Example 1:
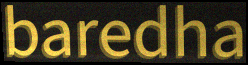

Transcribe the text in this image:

baredha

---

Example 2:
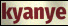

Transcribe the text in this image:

kyanye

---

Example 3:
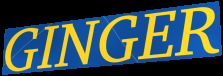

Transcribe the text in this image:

GINGER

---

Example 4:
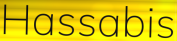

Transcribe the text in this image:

Hassabis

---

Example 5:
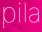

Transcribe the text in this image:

pila